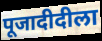
पूजादीदीला